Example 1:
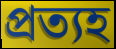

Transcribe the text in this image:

প্রত্যহ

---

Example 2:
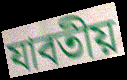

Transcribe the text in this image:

যাবতীয়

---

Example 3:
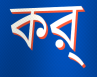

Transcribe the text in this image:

কর্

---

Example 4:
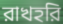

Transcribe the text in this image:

রাখহরি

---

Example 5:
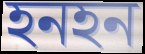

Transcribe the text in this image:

হনহন